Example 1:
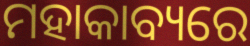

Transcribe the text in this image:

ମହାକାବ୍ୟରେ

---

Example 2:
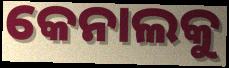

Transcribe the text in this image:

କେନାଲକୁ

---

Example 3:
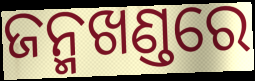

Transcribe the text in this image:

ଜନ୍ମଖଣ୍ଡରେ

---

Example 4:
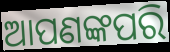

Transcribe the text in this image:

ଆପଣଙ୍କପରି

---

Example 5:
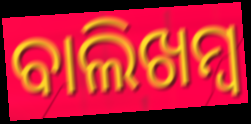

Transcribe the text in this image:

ବାଲିଖମ୍ବ